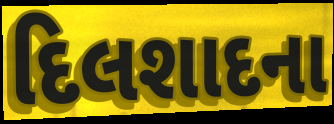
દિલશાદના